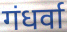
गंधर्वा